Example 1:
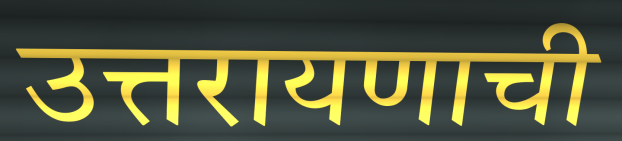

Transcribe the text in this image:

उत्तरायणाची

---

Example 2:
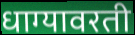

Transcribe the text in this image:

धाग्यावरती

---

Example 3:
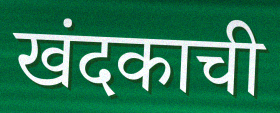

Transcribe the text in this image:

खंदकाची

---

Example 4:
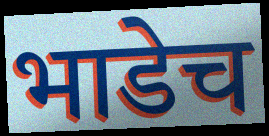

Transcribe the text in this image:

भाडेच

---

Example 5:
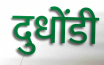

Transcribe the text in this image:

दुधोंडी